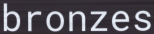
bronzes